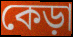
কেড়া